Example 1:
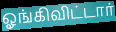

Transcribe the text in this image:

ஓங்கிவிட்டார்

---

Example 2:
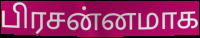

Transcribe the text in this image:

பிரசன்னமாக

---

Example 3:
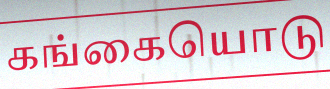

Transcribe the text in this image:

கங்கையொடு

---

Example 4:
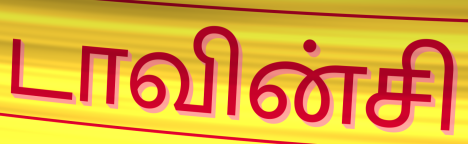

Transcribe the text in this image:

டாவின்சி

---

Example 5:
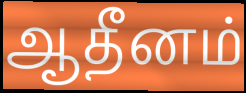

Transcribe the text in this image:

ஆதீனம்